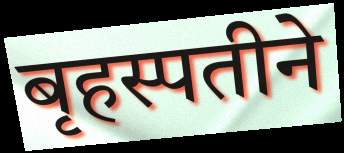
बृहस्पतीने